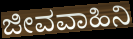
ಜೀವವಾಹಿನಿ